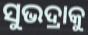
ସୁଭଦ୍ରାକୁ